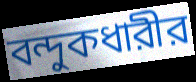
বন্দুকধারীর